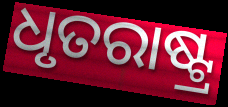
ଧୃତରାଷ୍ଟ୍ର